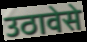
उठावेसे